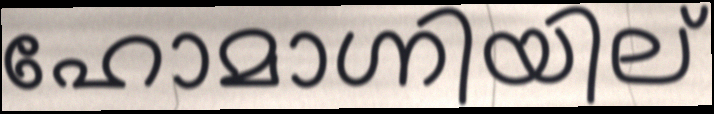
ഹോമാഗ്നിയില്